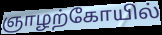
ஞாழற்கோயில்